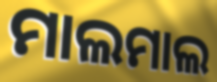
ମାଲମାଲ